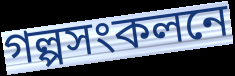
গল্পসংকলনে